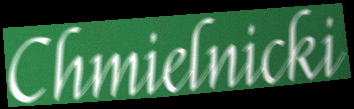
Chmielnicki